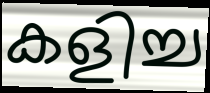
കളിച്ച